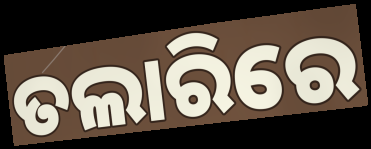
ତଲାରିରେ